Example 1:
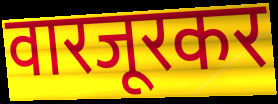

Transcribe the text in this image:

वारजूरकर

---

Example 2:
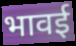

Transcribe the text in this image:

भावई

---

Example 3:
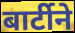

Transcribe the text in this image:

बार्टीने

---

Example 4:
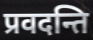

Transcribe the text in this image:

प्रवदन्ति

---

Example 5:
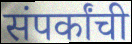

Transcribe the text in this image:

संपर्कांची